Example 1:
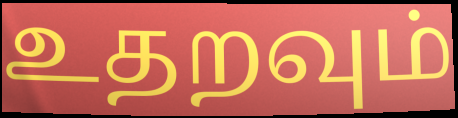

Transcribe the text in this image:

உதறவும்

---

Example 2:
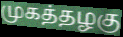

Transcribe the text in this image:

முகத்தழகு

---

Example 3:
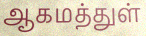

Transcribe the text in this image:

ஆகமத்துள்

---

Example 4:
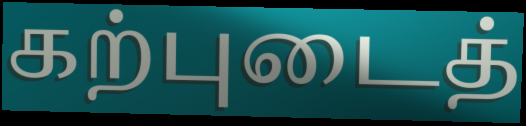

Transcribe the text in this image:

கற்புடைத்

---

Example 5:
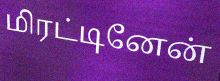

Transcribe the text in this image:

மிரட்டினேன்